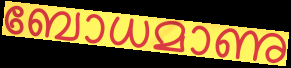
ബോധമാണു